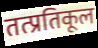
तत्प्रतिकूल